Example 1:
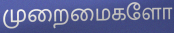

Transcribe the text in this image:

முறைமைகளோ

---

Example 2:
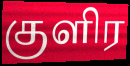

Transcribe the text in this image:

குளிர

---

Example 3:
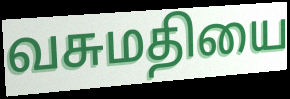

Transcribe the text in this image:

வசுமதியை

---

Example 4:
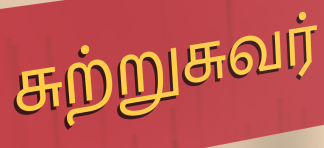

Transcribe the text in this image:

சுற்றுசுவர்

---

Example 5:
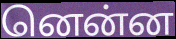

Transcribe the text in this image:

னென்ன